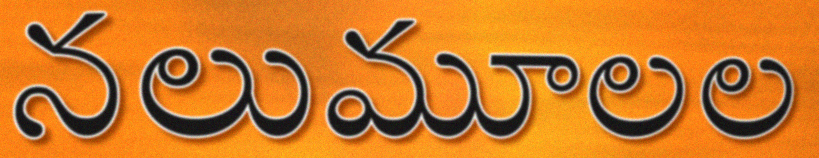
నలుమూలల